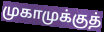
முகாமுக்குத்